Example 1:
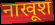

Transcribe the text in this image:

नाखूश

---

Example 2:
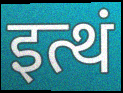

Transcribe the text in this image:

इत्थं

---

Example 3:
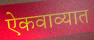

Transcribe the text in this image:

ऐकवाव्यात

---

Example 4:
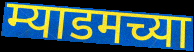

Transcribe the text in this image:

म्याडमच्या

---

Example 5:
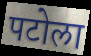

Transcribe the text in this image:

पटोला